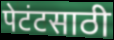
पेटंटसाठी